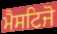
ਮੈਸਟਿਜੋ